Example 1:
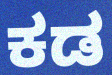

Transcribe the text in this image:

ಕಡ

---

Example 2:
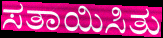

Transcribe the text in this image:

ಸತಾಯಿಸಿತು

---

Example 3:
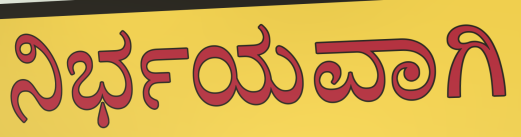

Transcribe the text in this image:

ನಿರ್ಭಯವಾಗಿ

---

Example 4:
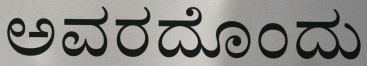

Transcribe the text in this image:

ಅವರದೊಂದು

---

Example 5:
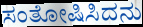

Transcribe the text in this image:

ಸಂತೋಷಿಸಿದನು